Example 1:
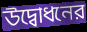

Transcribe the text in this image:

উদ্বোধনের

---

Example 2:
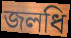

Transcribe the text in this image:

জলধি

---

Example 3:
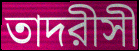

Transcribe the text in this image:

তাদরীসী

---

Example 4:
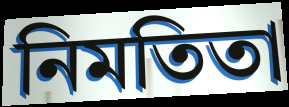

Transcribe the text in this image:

নিমতিতা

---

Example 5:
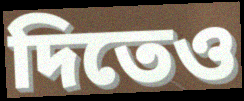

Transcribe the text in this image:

দিতেও